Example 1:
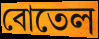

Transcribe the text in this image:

বোতেল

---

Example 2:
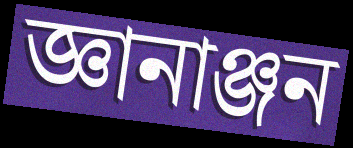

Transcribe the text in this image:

জ্ঞানাঞ্জন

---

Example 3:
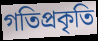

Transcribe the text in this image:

গতিপ্রকৃতি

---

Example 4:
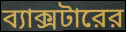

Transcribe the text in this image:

ব্যাক্সটারের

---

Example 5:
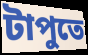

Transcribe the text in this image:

টাপুতে